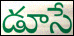
డూసే